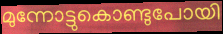
മുന്നോട്ടുകൊണ്ടുപോയി